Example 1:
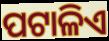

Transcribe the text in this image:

ପଟାଳିଏ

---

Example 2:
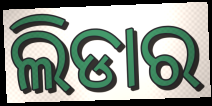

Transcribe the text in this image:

ଲିଡାର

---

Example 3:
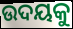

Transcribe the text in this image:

ଉଦୟକୁ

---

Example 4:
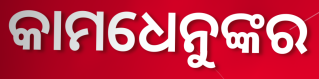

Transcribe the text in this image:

କାମଧେନୁଙ୍କର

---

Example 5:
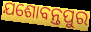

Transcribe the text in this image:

ଯଶୋବନ୍ତପୁର